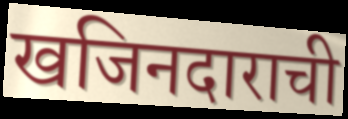
खजिनदाराची